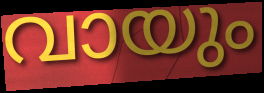
വായും